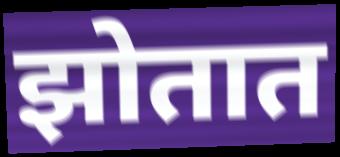
झोतात